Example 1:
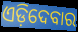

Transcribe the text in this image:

ଏଡ଼ିଦେବାର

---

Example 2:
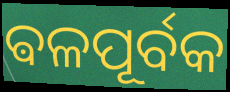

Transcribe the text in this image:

ଵଳପୂର୍ବକ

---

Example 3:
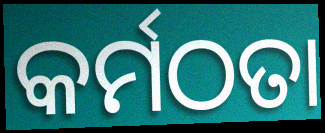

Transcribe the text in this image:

କର୍ମଠତା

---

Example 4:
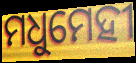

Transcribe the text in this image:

ମଧୁମେହୀ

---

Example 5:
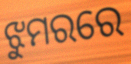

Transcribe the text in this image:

ଝୁମରରେ